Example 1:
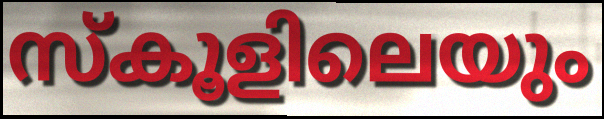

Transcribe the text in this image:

സ്കൂളിലെയും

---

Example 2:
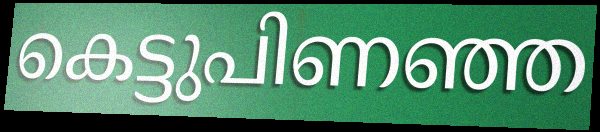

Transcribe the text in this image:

കെട്ടുപിണഞ്ഞ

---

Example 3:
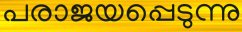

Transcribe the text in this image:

പരാജയപ്പെടുന്നു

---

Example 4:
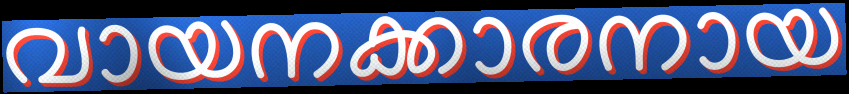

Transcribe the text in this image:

വായനക്കാരനായ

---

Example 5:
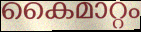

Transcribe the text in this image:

കൈമാറ്റം